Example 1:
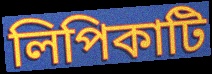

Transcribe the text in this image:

লিপিকাটি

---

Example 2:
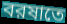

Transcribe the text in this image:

বরষাতে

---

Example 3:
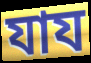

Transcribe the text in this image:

যায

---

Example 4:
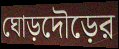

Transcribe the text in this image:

ঘোড়দৌড়ের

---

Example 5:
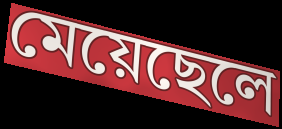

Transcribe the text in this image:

মেয়েছেলে